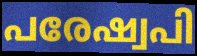
പരേഷ്വപി